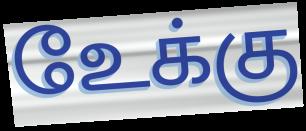
உேக்கு